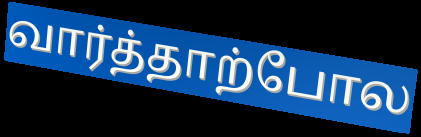
வார்த்தாற்போல